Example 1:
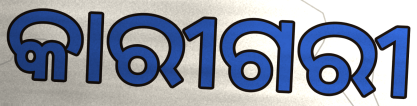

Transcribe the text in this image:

କାରୀଗରୀ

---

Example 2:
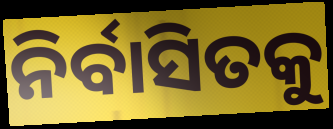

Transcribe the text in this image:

ନିର୍ବାସିତକୁ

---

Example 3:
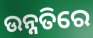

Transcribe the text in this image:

ଉନ୍ନତିରେ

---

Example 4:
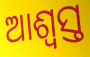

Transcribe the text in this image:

ଆଶ୍ୱସ୍ତ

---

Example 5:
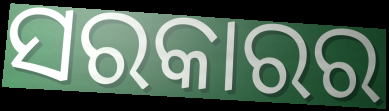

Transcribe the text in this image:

ସରକାରର